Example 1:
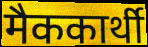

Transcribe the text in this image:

मैककार्थी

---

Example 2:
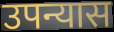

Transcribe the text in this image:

उपन्यास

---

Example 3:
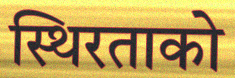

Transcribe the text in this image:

स्थिरताको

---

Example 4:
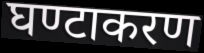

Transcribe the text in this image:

घण्टाकरण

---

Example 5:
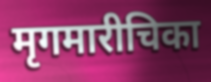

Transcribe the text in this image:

मृगमारीचिका